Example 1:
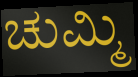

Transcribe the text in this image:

ಚುಮ್ಮಿ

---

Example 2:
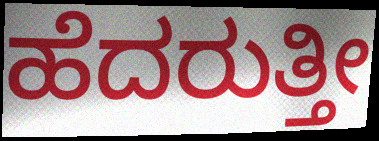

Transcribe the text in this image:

ಹೆದರುತ್ತೀ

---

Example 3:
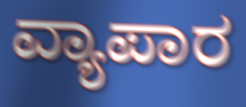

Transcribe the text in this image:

ವ್ಯಾಪಾರ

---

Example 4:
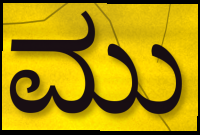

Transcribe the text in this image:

ಮು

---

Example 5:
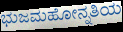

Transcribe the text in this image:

ಭುಜಮಹೋನ್ನತಿಯ